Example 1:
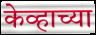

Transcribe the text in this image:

केव्हाच्या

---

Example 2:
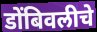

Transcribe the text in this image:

डोंबिवलीचे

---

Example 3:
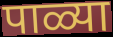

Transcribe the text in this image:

पाळ्या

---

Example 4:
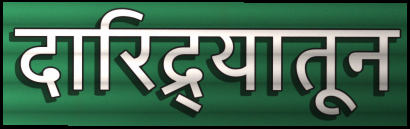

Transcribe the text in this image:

दारिद्र्यातून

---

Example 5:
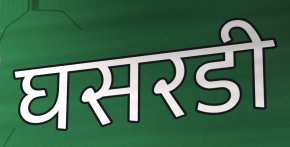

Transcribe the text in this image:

घसरडी